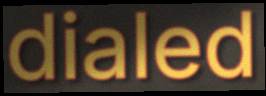
dialed